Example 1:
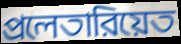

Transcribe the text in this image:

প্রলেতারিয়েত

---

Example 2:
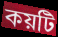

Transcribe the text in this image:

কয়টি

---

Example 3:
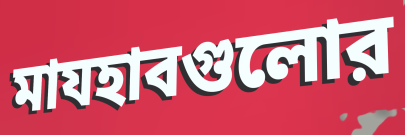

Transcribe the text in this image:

মাযহাবগুলোর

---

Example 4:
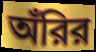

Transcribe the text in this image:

অঁরির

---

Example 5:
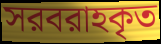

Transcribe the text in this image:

সরবরাহকৃত